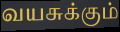
வயசுக்கும்